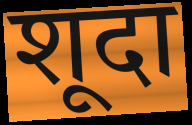
शूदा